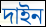
দাইন